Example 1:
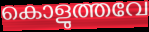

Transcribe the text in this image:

കൊളുത്തവേ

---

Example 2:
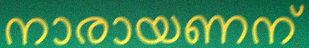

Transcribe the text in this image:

നാരായണന്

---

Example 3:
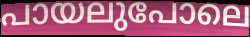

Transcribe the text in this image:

പായലുപോലെ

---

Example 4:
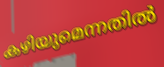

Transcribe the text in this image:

കഴിയുമെന്നതിൽ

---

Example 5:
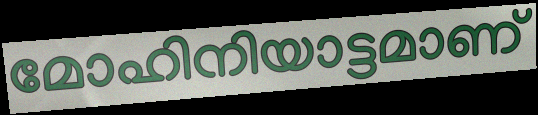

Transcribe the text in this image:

മോഹിനിയാട്ടമാണ്